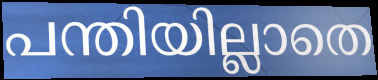
പന്തിയില്ലാതെ